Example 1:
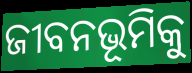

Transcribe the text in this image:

ଜୀବନଭୂମିକୁ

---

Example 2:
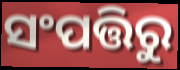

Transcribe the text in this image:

ସଂପତ୍ତିରୁ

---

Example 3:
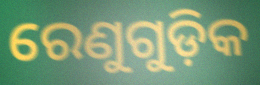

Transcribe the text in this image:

ରେଣୁଗୁଡ଼ିକ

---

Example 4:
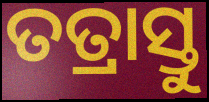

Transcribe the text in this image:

ତତ୍ରାସ୍ତୁ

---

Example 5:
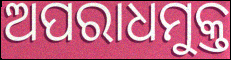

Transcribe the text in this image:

ଅପରାଧମୁକ୍ତ